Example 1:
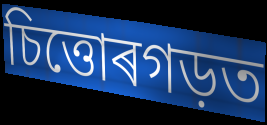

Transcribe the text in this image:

চিত্তোৰগড়ত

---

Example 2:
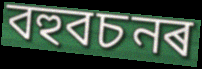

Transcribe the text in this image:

বহুবচনৰ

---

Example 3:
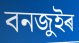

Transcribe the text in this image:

বনজুইৰ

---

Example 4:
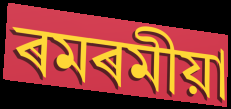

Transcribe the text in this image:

ৰমৰমীয়া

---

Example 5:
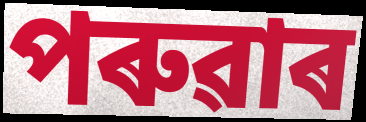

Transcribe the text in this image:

পৰুৱাৰ